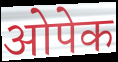
ओपेक